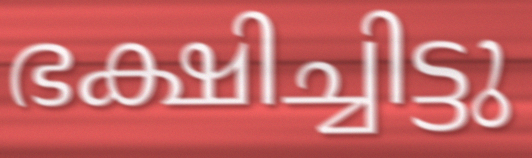
ഭക്ഷിച്ചിട്ടു